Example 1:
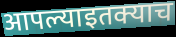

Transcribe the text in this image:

आपल्याइतक्याच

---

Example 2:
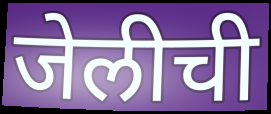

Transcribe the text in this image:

जेलीची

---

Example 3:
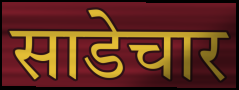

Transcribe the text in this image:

साडेचार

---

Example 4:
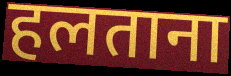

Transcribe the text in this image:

हलताना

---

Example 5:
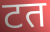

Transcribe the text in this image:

टत